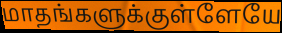
மாதங்களுக்குள்ளேயே